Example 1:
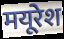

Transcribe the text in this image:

मयूरेश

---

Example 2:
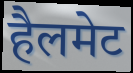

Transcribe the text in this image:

हैलमेट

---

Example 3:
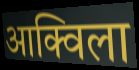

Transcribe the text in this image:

आक्विला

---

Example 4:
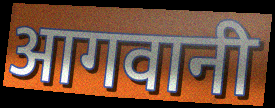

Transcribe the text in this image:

आगवानी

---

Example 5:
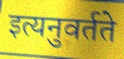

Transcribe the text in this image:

इत्यनुवर्तते